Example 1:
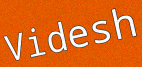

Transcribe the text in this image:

Videsh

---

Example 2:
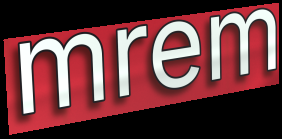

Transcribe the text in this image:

mrem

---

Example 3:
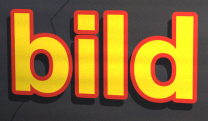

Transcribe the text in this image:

bild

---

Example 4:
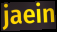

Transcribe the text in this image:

jaein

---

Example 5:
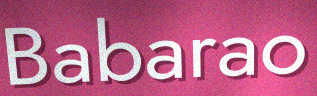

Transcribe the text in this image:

Babarao